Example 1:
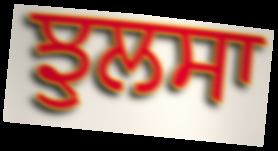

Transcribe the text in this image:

ਝੁਲਸਾ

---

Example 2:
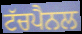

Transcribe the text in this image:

ਟੱਚਪੈਨਲ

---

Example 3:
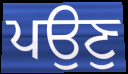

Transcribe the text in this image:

ਪਉਣੁ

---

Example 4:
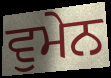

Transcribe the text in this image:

ਵੁਮੇਨ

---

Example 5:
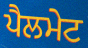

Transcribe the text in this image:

ਪੈਲਮੇਟ